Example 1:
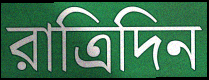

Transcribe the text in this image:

রাত্রিদিন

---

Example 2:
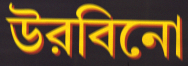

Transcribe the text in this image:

উরবিনো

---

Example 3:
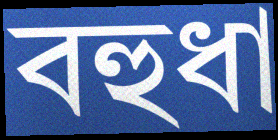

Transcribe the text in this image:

বহুধা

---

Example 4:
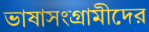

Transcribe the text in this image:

ভাষাসংগ্রামীদের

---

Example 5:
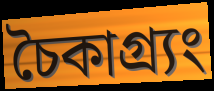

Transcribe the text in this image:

চৈকাগ্র্যং